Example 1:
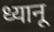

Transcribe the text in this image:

ध्यानू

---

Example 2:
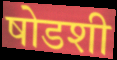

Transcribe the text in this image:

षोडशी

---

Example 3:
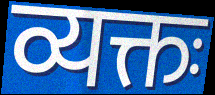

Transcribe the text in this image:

व्यक्तः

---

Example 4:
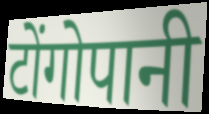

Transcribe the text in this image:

टोंगोपानी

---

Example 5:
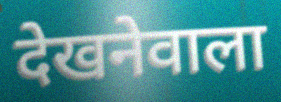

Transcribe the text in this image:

देखनेवाला